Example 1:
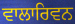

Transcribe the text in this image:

ਵਾਲਾਰਿਵਨ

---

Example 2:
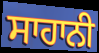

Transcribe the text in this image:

ਸਾਹਾਨੀ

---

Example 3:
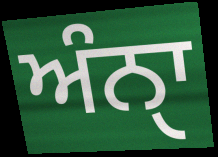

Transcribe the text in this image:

ਅੰਨੑਾ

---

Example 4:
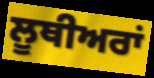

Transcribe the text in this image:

ਲੂਥੀਅਰਾਂ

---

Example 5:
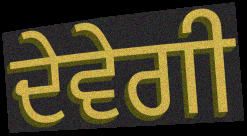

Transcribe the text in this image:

ਦੇਵੇਗੀ